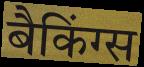
बैकिंग्स